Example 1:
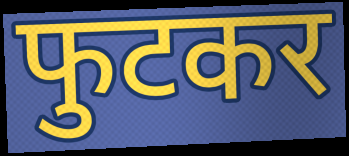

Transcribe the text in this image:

फुटकर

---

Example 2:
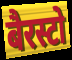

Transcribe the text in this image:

बैरस्टो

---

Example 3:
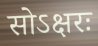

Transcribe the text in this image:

सोऽक्षरः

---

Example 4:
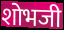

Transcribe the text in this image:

शोभजी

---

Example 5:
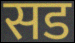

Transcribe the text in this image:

सड